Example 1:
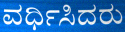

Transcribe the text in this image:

ವರ್ಧಿಸಿದರು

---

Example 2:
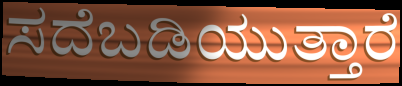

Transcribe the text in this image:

ಸದೆಬಡಿಯುತ್ತಾರೆ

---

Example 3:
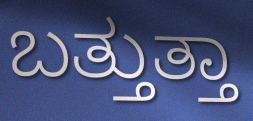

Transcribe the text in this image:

ಬತ್ತುತ್ತಾ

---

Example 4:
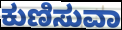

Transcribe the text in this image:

ಕುಣಿಸುವಾ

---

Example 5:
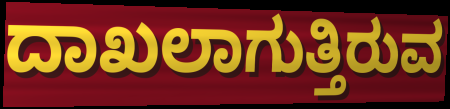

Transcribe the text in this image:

ದಾಖಲಾಗುತ್ತಿರುವ